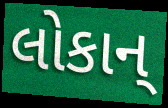
લોકાન્